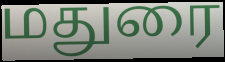
மதுரை